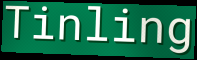
Tinling